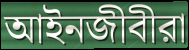
আইনজীবীরা